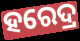
ହରେଦ୍ର